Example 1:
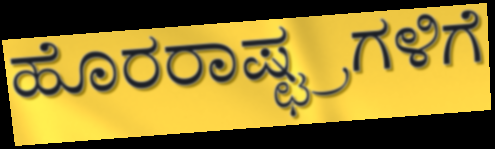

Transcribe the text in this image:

ಹೊರರಾಷ್ಟ್ರಗಳಿಗೆ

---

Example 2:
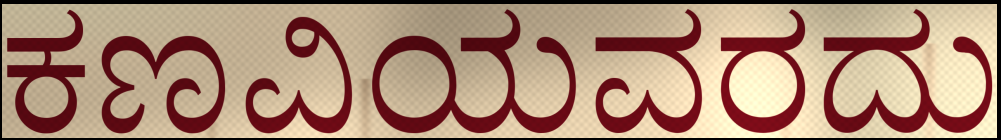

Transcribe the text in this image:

ಕಣವಿಯವರದು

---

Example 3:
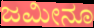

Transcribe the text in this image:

ಜಮೀನೂ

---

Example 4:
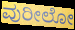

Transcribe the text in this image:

ವುರೀಲೋ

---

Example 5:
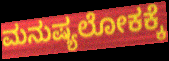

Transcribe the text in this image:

ಮನುಷ್ಯಲೋಕಕ್ಕೆ